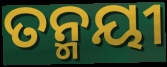
ତନ୍ମୟୀ